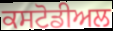
ਕਸਟੋਡੀਅਲ